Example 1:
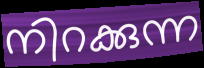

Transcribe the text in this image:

നിറക്കുന്ന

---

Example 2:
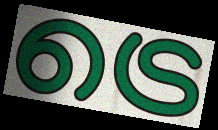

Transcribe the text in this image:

ട്രെ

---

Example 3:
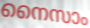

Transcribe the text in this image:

നൈസാം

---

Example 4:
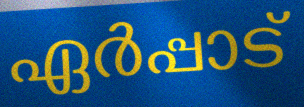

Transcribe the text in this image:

ഏർപ്പാട്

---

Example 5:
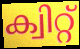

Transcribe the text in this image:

ക്വിറ്റ്